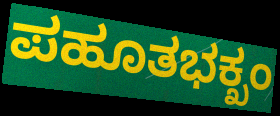
ಪಹೂತಭಕ್ಖಂ